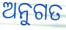
ଅନୁଗତ